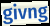
givng